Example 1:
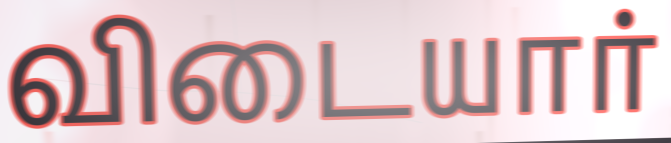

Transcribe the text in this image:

விடையார்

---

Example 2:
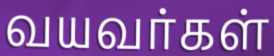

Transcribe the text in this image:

வயவர்கள்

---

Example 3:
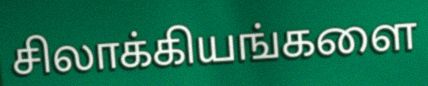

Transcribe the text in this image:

சிலாக்கியங்களை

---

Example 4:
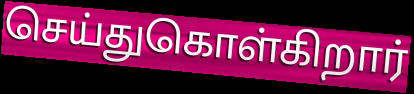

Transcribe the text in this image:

செய்துகொள்கிறார்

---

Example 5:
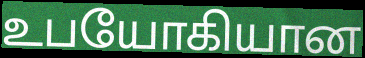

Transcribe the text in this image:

உபயோகியான